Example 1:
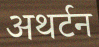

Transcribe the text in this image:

अथर्टन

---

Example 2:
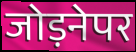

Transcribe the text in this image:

जोड़नेपर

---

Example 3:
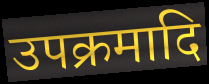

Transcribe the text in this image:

उपक्रमादि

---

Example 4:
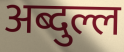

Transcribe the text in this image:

अब्दुल्ल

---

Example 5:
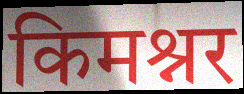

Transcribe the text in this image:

किमश्नर